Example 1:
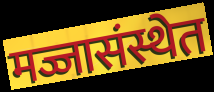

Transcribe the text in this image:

मज्जासंस्थेत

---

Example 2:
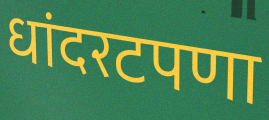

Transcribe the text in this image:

धांदरटपणा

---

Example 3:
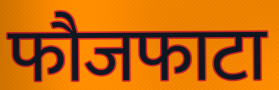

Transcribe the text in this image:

फौजफाटा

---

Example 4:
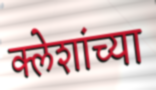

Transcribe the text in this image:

क्लेशांच्या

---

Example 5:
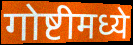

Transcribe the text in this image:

गोष्टीमध्ये